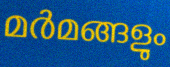
മർമങ്ങളും